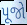
પૂજો